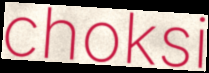
choksi